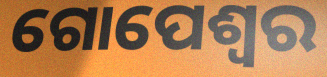
ଗୋପେଶ୍ଵର